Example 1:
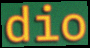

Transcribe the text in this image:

dio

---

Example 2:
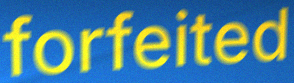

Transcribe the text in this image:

forfeited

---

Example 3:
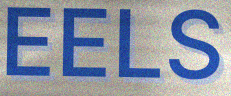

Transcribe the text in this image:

EELS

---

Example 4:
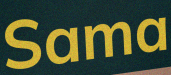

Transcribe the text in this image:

Sama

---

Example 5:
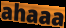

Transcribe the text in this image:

ahaaa